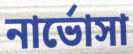
নার্ভোসা